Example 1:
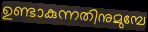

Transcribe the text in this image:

ഉണ്ടാകുന്നതിനുമുമ്പേ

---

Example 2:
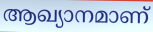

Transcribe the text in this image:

ആഖ്യാനമാണ്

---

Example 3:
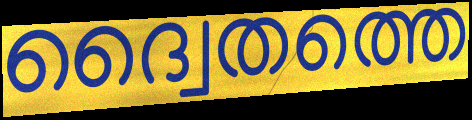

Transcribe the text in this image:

ദ്വൈതത്തെ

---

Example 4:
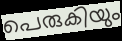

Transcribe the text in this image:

പെരുകിയും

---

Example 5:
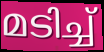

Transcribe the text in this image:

മടിച്ച്